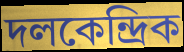
দলকেন্দ্রিক